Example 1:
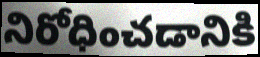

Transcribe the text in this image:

నిరోధించడానికి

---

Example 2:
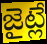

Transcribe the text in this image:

జైట్లే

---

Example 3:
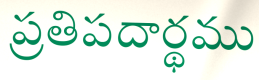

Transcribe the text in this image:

ప్రతిపదార్థము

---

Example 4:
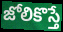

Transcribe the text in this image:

జోలికొస్తే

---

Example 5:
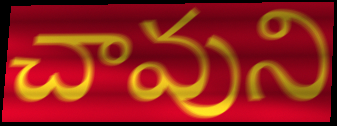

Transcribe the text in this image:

చావుని